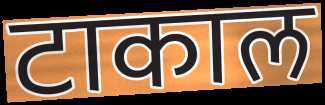
टाकाल